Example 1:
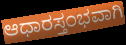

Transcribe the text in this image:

ಆಧಾರಸ್ತಂಭವಾಗಿ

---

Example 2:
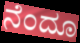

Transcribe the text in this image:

ನೆಂದೂ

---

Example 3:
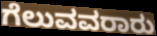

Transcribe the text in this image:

ಗೆಲುವವರಾರು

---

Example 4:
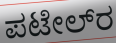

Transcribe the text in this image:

ಪಟೇಲ್‌ರ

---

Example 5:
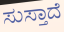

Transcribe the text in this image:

ಸುಸ್ತಾದೆ